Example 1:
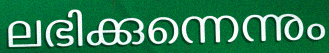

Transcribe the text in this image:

ലഭിക്കുന്നെന്നും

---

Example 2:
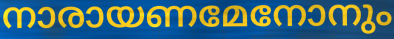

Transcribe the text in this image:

നാരായണമേനോനും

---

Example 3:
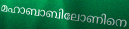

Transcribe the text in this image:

മഹാബാബിലോണിനെ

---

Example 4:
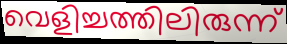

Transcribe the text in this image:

വെളിച്ചത്തിലിരുന്ന്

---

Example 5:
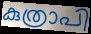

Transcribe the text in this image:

കുത്രാപി